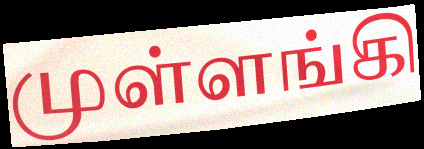
முள்ளங்கி